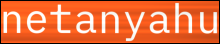
netanyahu